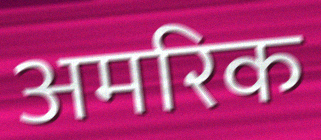
अमरिक